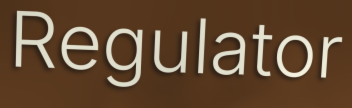
Regulator